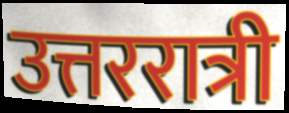
उत्तररात्री